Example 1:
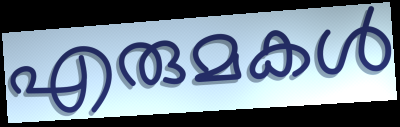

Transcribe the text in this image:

എരുമകൾ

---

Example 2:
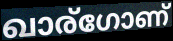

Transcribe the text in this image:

ഖാര്ഗോണ്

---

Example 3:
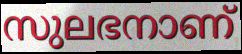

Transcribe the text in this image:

സുലഭനാണ്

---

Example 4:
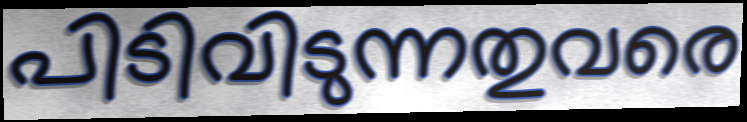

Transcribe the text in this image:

പിടിവിടുന്നതുവരെ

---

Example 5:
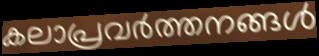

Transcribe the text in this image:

കലാപ്രവർത്തനങ്ങൾ